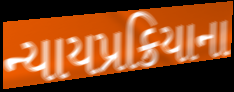
ન્યાયપ્રક્રિયાના